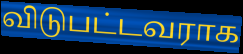
விடுபட்டவராக